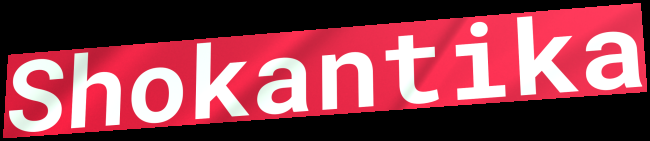
Shokantika